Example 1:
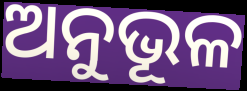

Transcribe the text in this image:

ଅନୁଭୂଳ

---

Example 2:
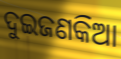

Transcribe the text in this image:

ଦୁଇଜଣକିଆ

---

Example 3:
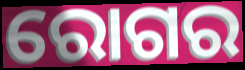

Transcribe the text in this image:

ରୋଗର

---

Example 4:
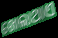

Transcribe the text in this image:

ଖୋଲାଥାଏ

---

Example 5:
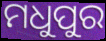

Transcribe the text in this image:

ମଧୁପୁର